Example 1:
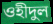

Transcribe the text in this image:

ওহীদুল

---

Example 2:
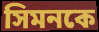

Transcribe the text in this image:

সিমনকে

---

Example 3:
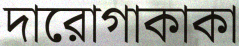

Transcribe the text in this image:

দারোগাকাকা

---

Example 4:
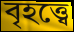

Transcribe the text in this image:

বৃহত্ত্বে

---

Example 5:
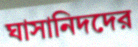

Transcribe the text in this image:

ঘাসানিদদের